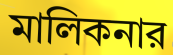
মালিকনার